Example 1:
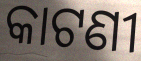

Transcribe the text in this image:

କାଟଣୀ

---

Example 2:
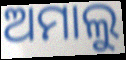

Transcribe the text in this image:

ଅମାଲୁ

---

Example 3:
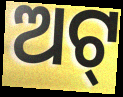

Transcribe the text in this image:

ଅଟ୍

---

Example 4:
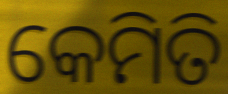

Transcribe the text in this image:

କେମିତି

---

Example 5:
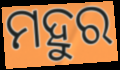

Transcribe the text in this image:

ମହୁର